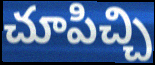
చూపిచ్చి